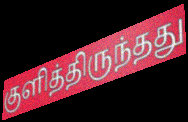
குளித்திருந்தது